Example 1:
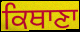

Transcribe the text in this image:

ਕਿਥਾਣਾ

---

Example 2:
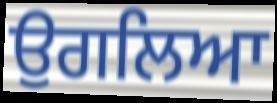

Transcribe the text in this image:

ਉਗਲਿਆ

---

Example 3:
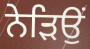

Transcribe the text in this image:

ਨੇੜਿਉਂ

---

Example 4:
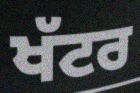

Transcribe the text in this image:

ਖੱਟਰ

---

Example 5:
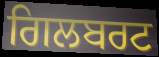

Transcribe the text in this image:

ਗਿਲਬਰਟ